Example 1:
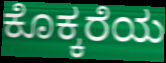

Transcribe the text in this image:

ಕೊಕ್ಕರೆಯ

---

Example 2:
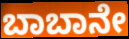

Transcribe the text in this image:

ಬಾಬಾನೇ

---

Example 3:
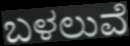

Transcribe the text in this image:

ಬಳಲುವೆ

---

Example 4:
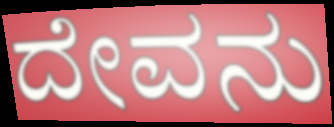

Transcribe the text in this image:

ದೇವನು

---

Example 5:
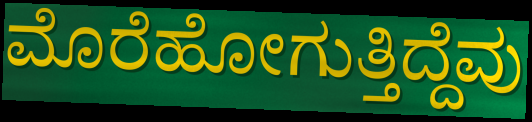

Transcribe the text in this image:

ಮೊರೆಹೋಗುತ್ತಿದ್ದೆವು